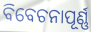
ବିବେଚନାପୂର୍ଣ୍ଣ